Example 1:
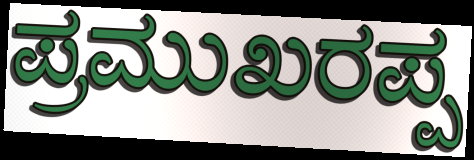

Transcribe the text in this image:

ಪ್ರಮುಖರಪ್ಪ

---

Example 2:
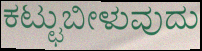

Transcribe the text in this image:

ಕಟ್ಟುಬೀಳುವುದು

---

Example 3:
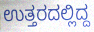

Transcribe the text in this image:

ಉತ್ತರದಲ್ಲಿದ್ದ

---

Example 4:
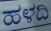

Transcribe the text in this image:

ಹಳದಿ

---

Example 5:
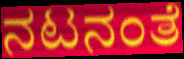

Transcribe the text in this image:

ನಟನಂತೆ